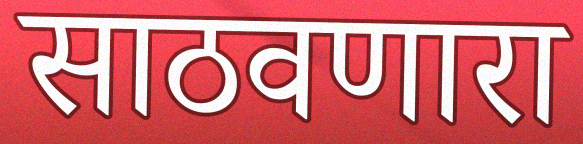
साठवणारा